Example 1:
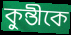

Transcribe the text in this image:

কুন্তীকে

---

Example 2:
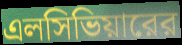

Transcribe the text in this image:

এলসিভিয়ারের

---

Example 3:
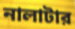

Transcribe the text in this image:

নালাটার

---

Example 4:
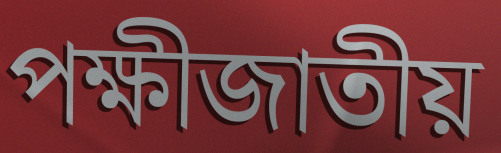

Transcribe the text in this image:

পক্ষীজাতীয়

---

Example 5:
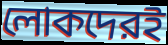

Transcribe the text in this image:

লোকদেরই